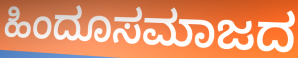
ಹಿಂದೂಸಮಾಜದ